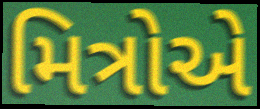
મિત્રોએ